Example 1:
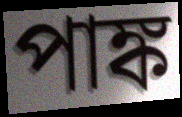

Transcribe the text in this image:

পাঙ্ক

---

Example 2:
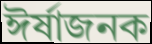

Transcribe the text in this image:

ঈর্ষাজনক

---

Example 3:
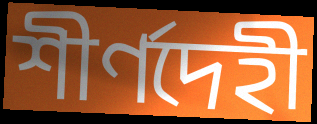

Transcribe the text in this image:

শীর্ণদেহী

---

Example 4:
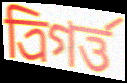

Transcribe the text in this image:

ত্রিগর্ত্ত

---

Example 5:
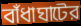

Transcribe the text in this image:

বাঁধাঘাটের